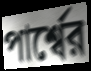
পার্শ্বের